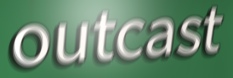
outcast